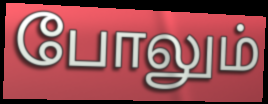
போலும்